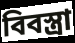
বিবস্ত্রা